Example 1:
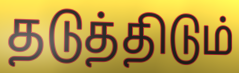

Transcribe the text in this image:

தடுத்திடும்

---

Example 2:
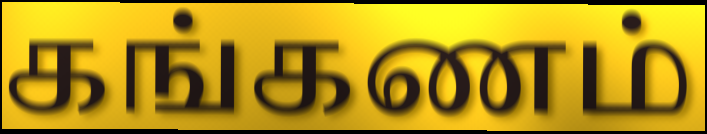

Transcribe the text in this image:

கங்கணம்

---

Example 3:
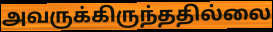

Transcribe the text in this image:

அவருக்கிருந்ததில்லை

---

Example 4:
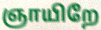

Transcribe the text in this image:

ஞாயிறே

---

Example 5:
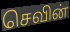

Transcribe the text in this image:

செவின்